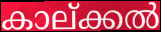
കാല്ക്കൽ